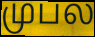
முபல